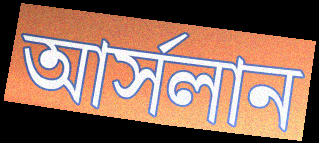
আর্সলান